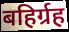
बहिर्ग्रह